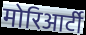
मोरिआर्टी